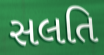
સલતિ